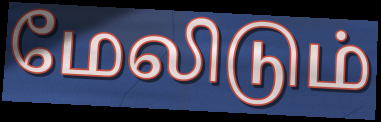
மேலிடும்